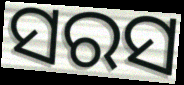
ସରସ